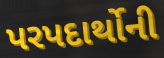
પરપદાર્થોની